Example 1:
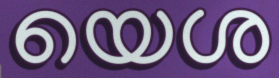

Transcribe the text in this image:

യെശ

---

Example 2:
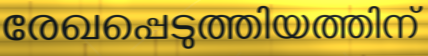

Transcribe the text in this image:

രേഖപ്പെടുത്തിയത്തിന്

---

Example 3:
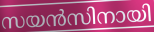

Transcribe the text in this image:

സയൻസിനായി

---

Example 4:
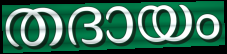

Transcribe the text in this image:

തദായം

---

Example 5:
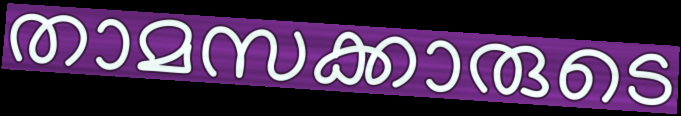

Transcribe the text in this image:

താമസക്കാരുടെ